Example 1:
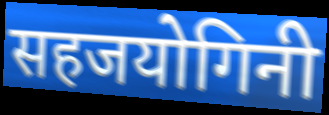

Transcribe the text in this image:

सहजयोगिनी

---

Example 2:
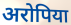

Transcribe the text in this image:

अरोपिया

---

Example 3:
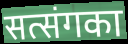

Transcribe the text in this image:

सत्संगका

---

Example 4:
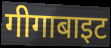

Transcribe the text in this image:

गीगाबाइट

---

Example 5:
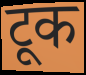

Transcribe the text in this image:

टूक